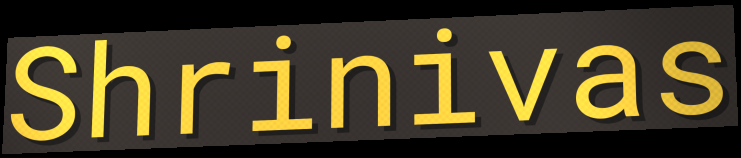
Shrinivas